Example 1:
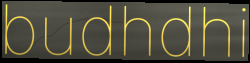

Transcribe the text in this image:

budhdhi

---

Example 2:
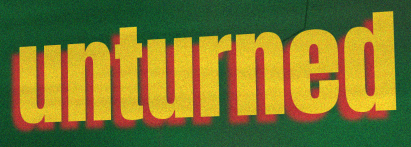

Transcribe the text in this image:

unturned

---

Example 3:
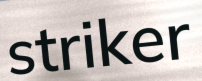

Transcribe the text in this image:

striker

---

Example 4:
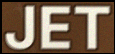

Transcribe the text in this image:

JET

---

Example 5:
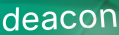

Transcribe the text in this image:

deacon